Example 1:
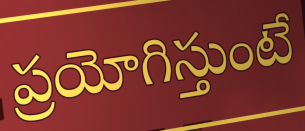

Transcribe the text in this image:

ప్రయోగిస్తుంటే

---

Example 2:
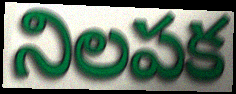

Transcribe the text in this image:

నిలపక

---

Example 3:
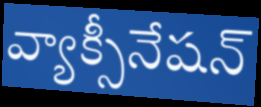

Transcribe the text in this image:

వ్యాక్సీనేషన్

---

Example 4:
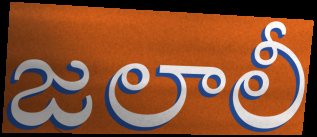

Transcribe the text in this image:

జలాలీ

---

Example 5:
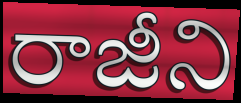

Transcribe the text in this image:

రాజీని